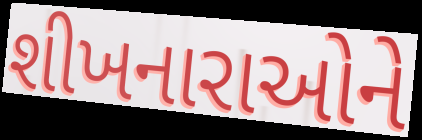
શીખનારાઓને